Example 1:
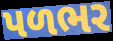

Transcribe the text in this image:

પળભર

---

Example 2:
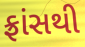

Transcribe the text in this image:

ફ્રાંસથી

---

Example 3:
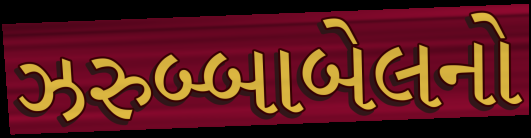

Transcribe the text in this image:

ઝરુબ્બાબેલનો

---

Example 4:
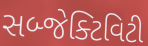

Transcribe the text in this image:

સબ્જેક્ટિવિટી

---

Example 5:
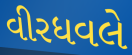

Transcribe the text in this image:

વીરધવલે